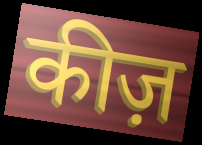
कीज़